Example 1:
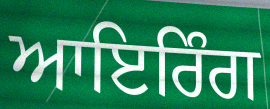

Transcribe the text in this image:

ਆਇਰਿੰਗ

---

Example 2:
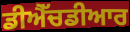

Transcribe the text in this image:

ਡੀਐੱਚਡੀਆਰ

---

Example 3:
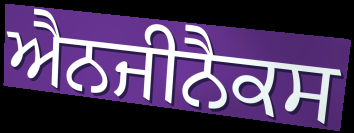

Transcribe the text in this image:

ਐਨਜੀਨੈਕਸ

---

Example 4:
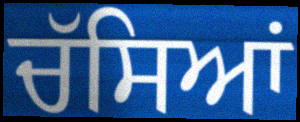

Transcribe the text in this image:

ਚੱਸਿਆਂ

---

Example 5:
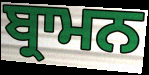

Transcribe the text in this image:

ਬ੍ਰਾਮਨ